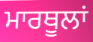
ਮਾਰਥੂਲਾਂ